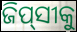
ଜିପ୍‌ସୀକୁ